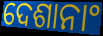
ଦେଶାନାଂ